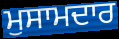
ਮੁਸਾਮਦਾਰ